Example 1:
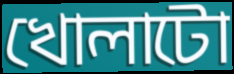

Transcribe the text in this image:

খোলাটো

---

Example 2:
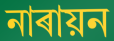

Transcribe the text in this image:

নাৰায়ন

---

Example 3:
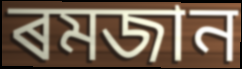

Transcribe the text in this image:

ৰমজান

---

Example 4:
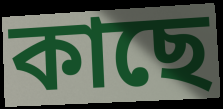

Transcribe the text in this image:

কাছে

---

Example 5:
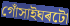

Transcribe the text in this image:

গোঁসাইঘৰটো